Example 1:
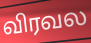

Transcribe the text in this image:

விரவல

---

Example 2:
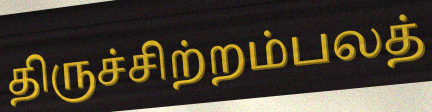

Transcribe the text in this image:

திருச்சிற்றம்பலத்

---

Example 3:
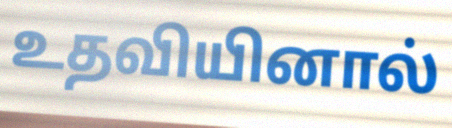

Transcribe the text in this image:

உதவியினால்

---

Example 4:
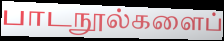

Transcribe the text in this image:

பாடநூல்களைப்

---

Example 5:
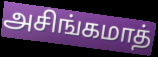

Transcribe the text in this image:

அசிங்கமாத்